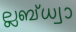
ല്ലബ്ധ്വാ